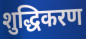
शुद्धिकरण